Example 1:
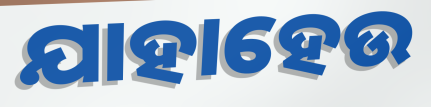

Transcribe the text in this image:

ଯାହାହେଉ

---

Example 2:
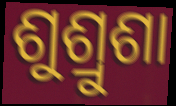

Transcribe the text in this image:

ଶୁଶ୍ରୁଶା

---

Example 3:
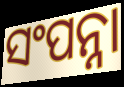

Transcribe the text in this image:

ସଂପନ୍ନା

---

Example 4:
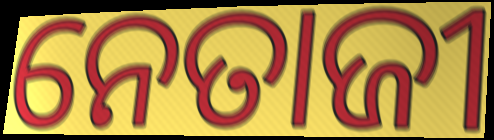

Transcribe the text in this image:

ନେତାଜୀ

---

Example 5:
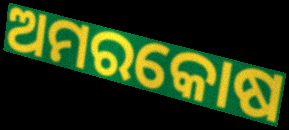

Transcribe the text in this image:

ଅମରକୋଷ